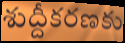
శుద్దీకరణకు